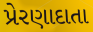
પ્રેરણાદાતા